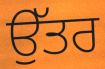
ਉੱਤਰ